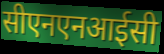
सीएनएनआईसी